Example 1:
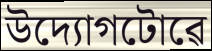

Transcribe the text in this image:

উদ্যোগটোৱে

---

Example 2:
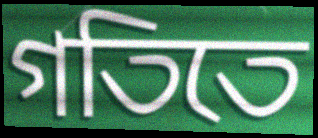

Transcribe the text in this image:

গতিতে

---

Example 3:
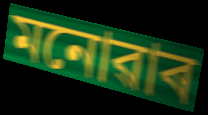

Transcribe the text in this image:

মনোৱাৰ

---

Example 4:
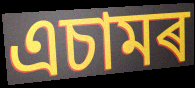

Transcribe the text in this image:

এচামৰ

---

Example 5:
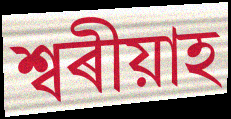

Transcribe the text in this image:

শ্বৰীয়াহ